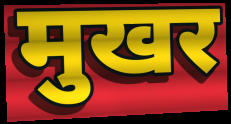
मुखर